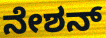
ನೇಶನ್